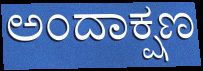
ಅಂದಾಕ್ಷಣ